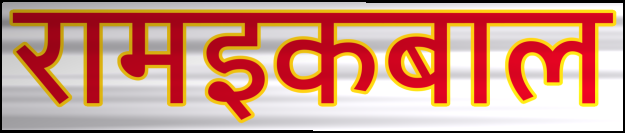
रामइकबाल